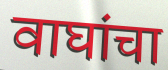
वाघांचा